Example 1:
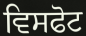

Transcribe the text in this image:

ਵਿਸਫੋਟ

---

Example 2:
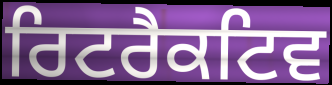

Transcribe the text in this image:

ਰਿਟਰੈਕਟਿਵ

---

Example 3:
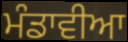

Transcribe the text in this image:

ਮੰਡਾਵੀਆ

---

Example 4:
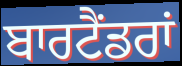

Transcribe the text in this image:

ਬਾਰਟੈਂਡਰਾਂ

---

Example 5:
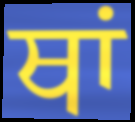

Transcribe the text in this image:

ਥਾਂ